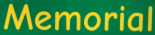
Memorial